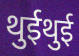
थुईथुई